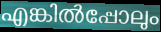
എങ്കിൽപ്പോലും